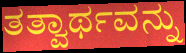
ತತ್ವಾರ್ಥವನ್ನು